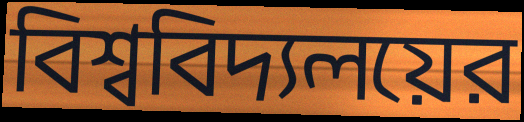
বিশ্ববিদ্যলয়ের